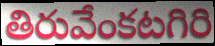
తిరువేంకటగిరి